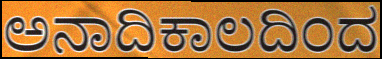
ಅನಾದಿಕಾಲದಿಂದ